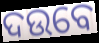
ଦଉବେ